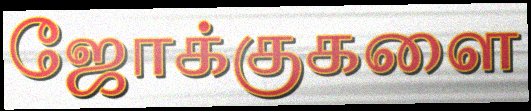
ஜோக்குகளை